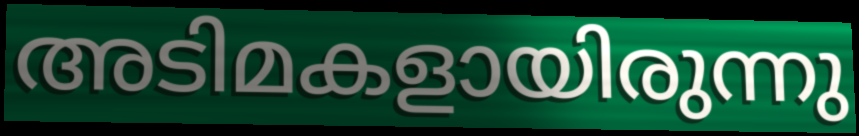
അടിമകളായിരുന്നു